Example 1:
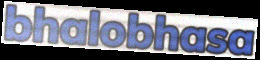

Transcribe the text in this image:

bhalobhasa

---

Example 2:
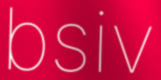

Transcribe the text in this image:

bsiv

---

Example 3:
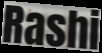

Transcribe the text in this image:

Rashi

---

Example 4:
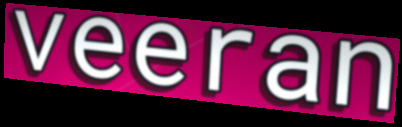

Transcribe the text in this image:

veeran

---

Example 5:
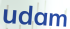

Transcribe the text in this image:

udam